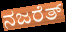
ನಜರೆತ್